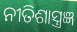
ନୀତିଶାସ୍ତ୍ରଜ୍ଞ